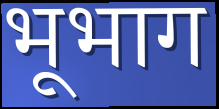
भूभाग